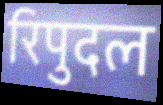
रिपुदल